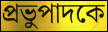
প্রভুপাদকে